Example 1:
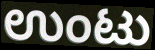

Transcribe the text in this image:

ಉಂಟು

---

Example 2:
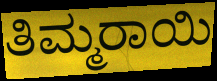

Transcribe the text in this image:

ತಿಮ್ಮರಾಯಿ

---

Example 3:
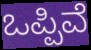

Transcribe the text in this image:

ಒಪ್ಪಿವೆ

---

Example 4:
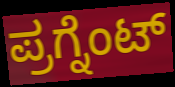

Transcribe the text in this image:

ಪ್ರಗ್ನೆಂಟ್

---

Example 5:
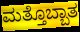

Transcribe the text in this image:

ಮತ್ತೊಬ್ಬಾತ